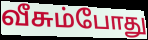
வீசும்போது